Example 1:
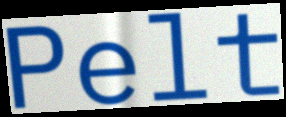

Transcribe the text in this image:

Pelt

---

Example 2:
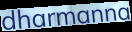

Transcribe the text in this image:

dharmanna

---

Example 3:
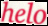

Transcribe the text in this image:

helo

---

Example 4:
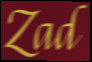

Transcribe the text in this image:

Zad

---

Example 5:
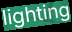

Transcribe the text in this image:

lighting